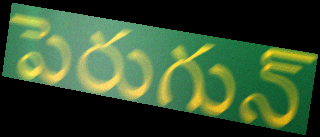
పెరుగున్